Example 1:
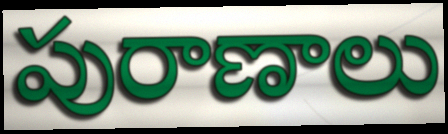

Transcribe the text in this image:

పురాణాలు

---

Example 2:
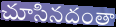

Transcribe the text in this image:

చూసినదంతా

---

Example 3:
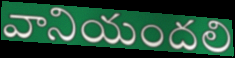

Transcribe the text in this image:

వానియందలి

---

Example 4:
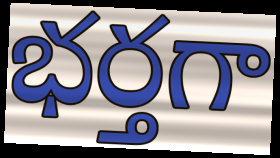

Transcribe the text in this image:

భర్తగా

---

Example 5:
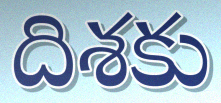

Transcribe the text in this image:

దిశకు